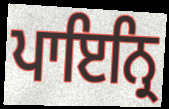
ਪਾਇਨ੍ਰਿ